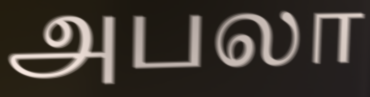
அபலா